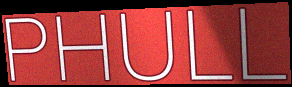
PHULL